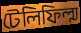
টেলিফিল্ম